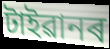
টাইৱানৰ